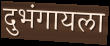
दुभंगायला